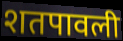
शतपावली